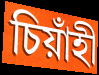
চিয়াঁহী